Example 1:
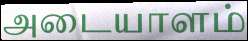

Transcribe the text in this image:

அடையாளம்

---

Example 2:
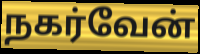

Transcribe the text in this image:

நகர்வேன்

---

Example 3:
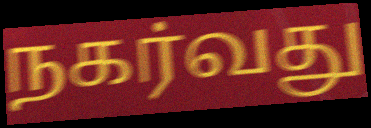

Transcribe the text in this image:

நகர்வது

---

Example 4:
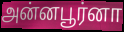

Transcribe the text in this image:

அன்னபூர்னா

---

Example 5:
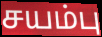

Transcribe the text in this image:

சயம்பு